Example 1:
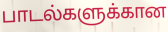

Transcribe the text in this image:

பாடல்களுக்கான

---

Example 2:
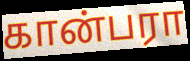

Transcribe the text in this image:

கான்பரா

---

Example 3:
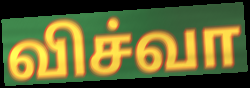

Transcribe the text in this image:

விச்வா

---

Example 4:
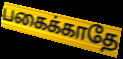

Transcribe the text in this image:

பகைக்காதே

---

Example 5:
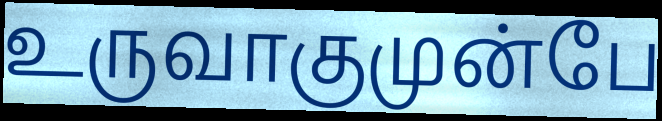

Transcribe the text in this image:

உருவாகுமுன்பே